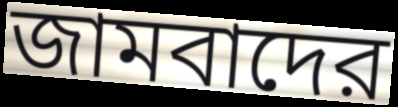
জামবাদের